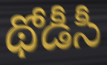
థోడీసీ